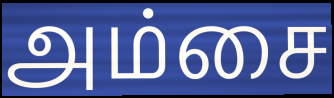
அம்சை